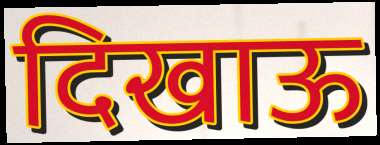
दिखाऊ